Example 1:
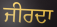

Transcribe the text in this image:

ਜੀਰਦਾ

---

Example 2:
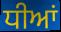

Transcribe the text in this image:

ਧੀਆਂ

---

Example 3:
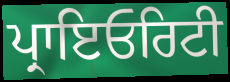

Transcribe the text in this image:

ਪ੍ਰਾਇਓਰਿਟੀ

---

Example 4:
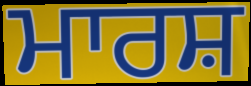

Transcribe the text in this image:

ਮਾਰਸ਼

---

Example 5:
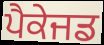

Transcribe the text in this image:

ਪੈਕੇਜਡ